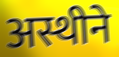
अस्थीने